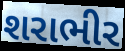
શરાભીર